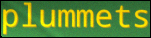
plummets